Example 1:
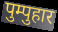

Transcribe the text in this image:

पुम्पुहार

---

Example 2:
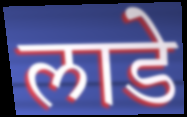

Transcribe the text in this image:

लाडे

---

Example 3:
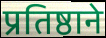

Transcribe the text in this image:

प्रतिष्ठाने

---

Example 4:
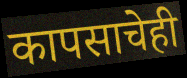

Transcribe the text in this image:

कापसाचेही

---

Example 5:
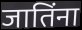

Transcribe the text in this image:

जातिंना